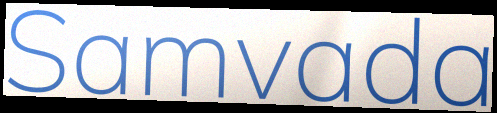
Samvada